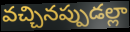
వచ్చినప్పుడల్లా